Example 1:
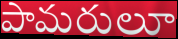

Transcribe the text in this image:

పామరులూ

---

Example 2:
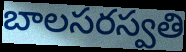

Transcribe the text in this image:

బాలసరస్వతి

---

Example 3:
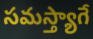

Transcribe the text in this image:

సమస్త్యాగే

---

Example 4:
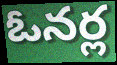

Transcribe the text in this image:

ఓనర్ల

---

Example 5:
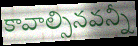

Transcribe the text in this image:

కావాల్సినవన్నీ